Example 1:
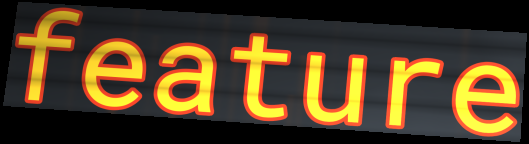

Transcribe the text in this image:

feature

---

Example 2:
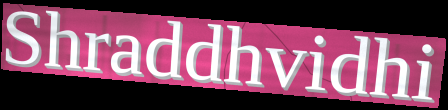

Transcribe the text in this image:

Shraddhvidhi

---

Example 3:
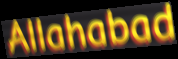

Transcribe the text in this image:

Allahabad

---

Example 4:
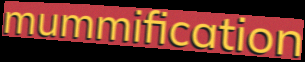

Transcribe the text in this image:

mummification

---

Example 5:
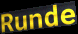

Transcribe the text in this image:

Runde